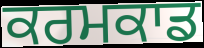
ਕਰਮਕਾਡ